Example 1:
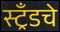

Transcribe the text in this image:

स्ट्रँडचे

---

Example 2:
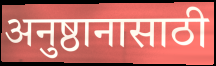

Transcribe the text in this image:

अनुष्ठानासाठी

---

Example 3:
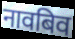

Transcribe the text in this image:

नावबिव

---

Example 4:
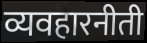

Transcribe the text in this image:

व्यवहारनीती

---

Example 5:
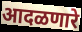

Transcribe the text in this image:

आदळणारे